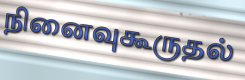
நினைவுகூருதல்